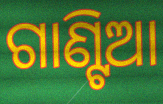
ଗାଣ୍ଟିଆ